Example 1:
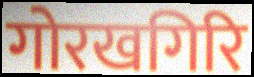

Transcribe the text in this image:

गोरखगिरि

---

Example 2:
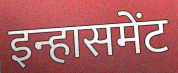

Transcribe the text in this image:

इन्हासमेंट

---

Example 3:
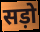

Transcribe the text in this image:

सड़ो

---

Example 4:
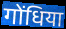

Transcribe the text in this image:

गोंधिया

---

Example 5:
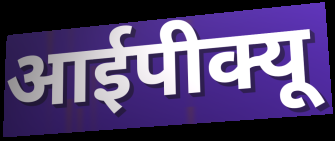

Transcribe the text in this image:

आईपीक्यू